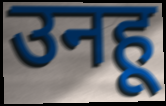
उनहू